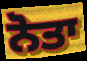
ਨੋਤਾ